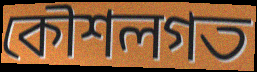
কৌশলগত